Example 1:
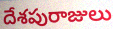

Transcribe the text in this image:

దేశపురాజులు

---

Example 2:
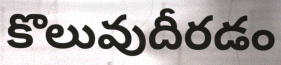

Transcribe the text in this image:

కొలువుదీరడం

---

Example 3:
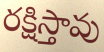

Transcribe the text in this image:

రక్షిస్తావు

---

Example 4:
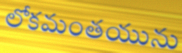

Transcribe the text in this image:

లోకమంతయును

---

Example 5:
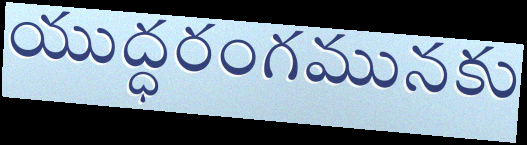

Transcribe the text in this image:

యుద్ధరంగమునకు